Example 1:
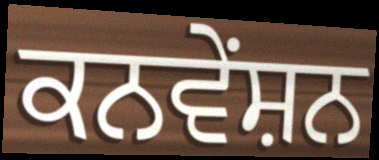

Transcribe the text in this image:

ਕਨਵੇਂਸ਼ਨ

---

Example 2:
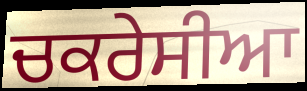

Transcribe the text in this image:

ਚਕਰੇਸੀਆ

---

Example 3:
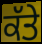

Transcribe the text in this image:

ਕੱਤੇ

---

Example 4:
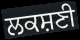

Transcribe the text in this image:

ਲਕਸ਼ਣੀ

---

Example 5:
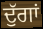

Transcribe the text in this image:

ਦੁੱਗਾਂ